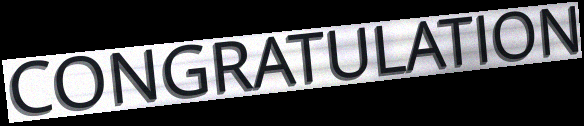
CONGRATULATION